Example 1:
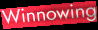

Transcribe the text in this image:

Winnowing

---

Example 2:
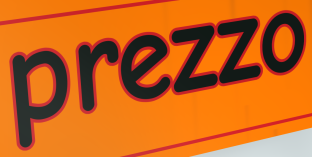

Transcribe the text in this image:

prezzo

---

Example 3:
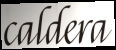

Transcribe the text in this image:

caldera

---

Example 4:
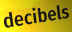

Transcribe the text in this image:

decibels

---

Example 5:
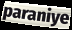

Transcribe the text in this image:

paraniye